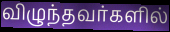
விழுந்தவர்களில்